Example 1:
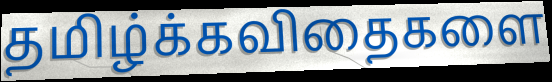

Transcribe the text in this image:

தமிழ்க்கவிதைகளை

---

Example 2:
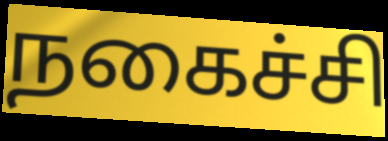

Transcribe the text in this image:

நகைச்சி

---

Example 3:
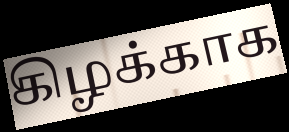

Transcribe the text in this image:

கிழக்காக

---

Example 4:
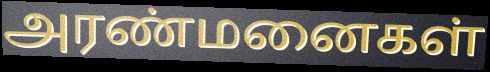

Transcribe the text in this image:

அரண்மனைகள்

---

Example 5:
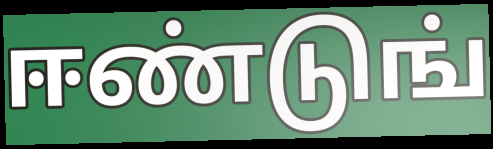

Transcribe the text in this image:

ஈண்டுங்